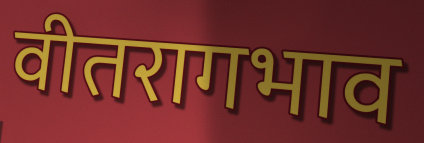
वीतरागभाव